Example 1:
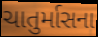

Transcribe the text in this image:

ચાતુર્માસના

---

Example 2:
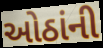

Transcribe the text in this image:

ઓઠાંની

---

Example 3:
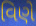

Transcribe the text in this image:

વિણે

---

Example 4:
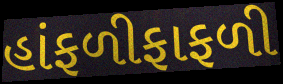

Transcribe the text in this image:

હાંફળીફાફળી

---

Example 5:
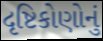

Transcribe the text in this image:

દૃષ્ટિકોણોનું